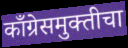
काँग्रेसमुक्तीचा